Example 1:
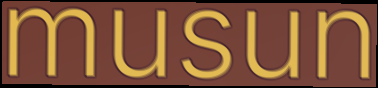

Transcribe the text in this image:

musun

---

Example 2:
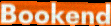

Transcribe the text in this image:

Bookend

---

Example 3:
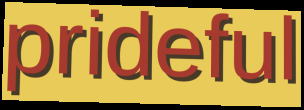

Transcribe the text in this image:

prideful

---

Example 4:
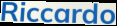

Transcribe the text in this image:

Riccardo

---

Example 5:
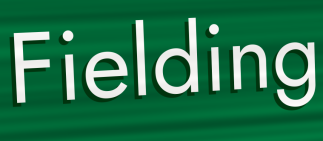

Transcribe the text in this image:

Fielding